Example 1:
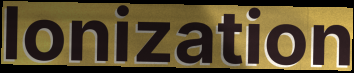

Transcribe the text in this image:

Ionization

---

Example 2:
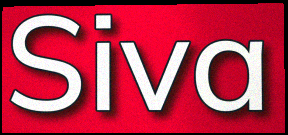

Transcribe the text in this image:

Siva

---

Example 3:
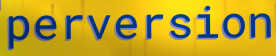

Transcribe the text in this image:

perversion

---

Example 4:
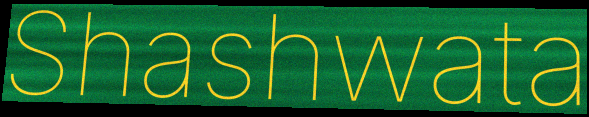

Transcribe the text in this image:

Shashwata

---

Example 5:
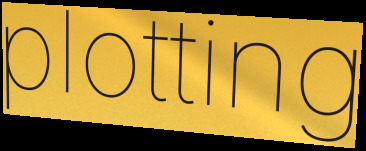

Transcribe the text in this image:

plotting